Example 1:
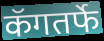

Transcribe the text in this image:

कॅगतर्फे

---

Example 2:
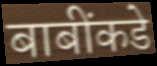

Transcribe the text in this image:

बाबींकडे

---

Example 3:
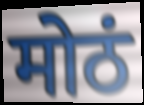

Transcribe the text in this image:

मोठं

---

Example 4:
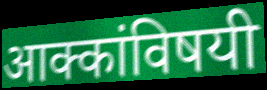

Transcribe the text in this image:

आक्कांविषयी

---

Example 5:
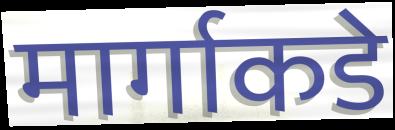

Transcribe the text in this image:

मार्गाकडे